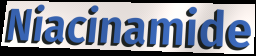
Niacinamide